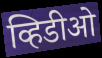
व्हिडीओ